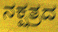
ನಕ್ಷತ್ರದ